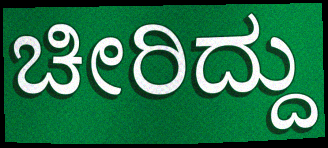
ಚೀರಿದ್ದು